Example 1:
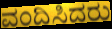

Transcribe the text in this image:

ವಂದಿಸಿದರು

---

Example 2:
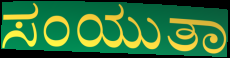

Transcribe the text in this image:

ಸಂಯುತಾ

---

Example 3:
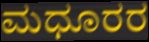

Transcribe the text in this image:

ಮಧೂರರ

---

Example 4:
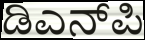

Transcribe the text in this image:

ಡಿಎನ್‌ಪಿ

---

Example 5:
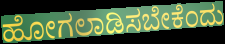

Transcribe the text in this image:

ಹೋಗಲಾಡಿಸಬೇಕೆಂದು